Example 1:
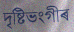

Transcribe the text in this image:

দৃষ্টিভংগীৰ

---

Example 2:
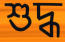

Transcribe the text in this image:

শুদ্ধ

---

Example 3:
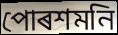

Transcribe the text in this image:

পোৰশমনি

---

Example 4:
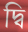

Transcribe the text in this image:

দ্বি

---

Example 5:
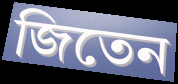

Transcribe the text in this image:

জিতেন